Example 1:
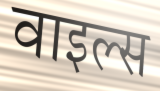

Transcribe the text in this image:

वाइल्स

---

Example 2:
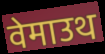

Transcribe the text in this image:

वेमाउथ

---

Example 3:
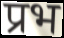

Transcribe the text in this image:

प्रभ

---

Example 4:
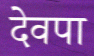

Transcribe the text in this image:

देवपा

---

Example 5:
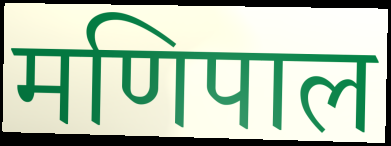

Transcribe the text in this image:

मणिपाल